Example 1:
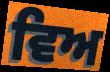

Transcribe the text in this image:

ਵਿਅ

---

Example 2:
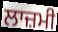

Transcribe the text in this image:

ਲਾਜ਼ਮੀ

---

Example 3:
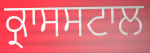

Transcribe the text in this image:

ਕ੍ਰਾਸਸਟਾਲ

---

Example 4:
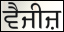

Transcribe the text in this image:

ਵੈਜੀਜ਼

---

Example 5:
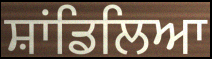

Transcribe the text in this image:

ਸ਼ਾਂਡਿਲਿਆ